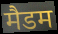
मैडम